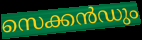
സെക്കൻഡും